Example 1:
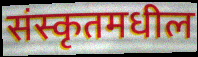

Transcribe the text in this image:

संस्कृतमधील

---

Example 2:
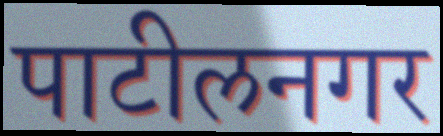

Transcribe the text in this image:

पाटीलनगर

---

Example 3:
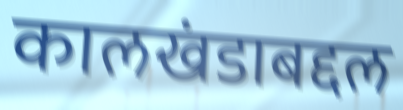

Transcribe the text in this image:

कालखंडाबद्दल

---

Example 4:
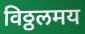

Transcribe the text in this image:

विठ्ठलमय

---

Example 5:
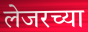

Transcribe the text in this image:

लेजरच्या